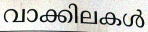
വാക്കിലകൾ